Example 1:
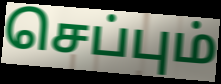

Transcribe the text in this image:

செப்பும்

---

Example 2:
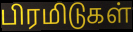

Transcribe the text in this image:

பிரமிடுகள்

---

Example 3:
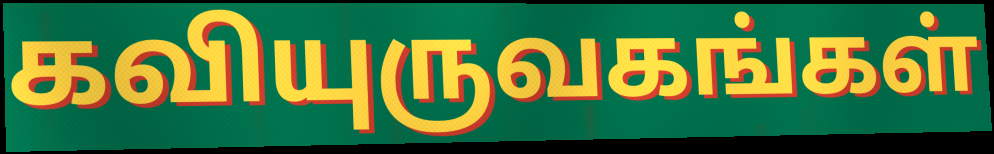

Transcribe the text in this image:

கவியுருவகங்கள்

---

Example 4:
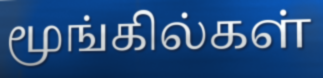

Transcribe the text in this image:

மூங்கில்கள்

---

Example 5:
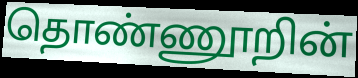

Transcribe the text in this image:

தொண்ணூறின்